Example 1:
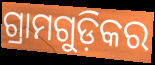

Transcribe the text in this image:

ଗ୍ରାମଗୁଡ଼ିକର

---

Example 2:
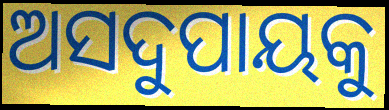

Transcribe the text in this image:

ଅସଦୁପାୟକୁ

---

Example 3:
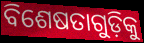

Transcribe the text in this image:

ବିଶେଷତାଗୁଡ଼ିକୁ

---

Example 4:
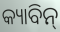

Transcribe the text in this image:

କ୍ୟାବିନ୍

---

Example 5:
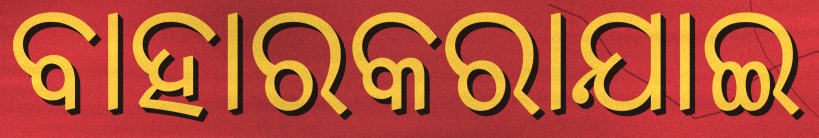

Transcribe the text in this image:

ବାହାରକରାଯାଇ